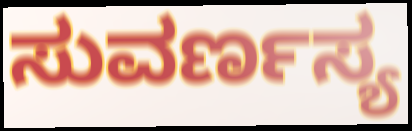
ಸುವರ್ಣಸ್ಯ